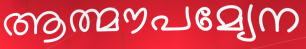
ആത്മൗപമ്യേന